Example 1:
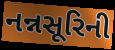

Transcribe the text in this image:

નન્નસૂરિની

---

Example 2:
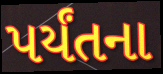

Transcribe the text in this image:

પર્યંતના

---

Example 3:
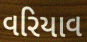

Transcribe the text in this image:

વરિયાવ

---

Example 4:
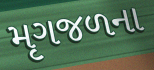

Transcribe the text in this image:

મૃગજળના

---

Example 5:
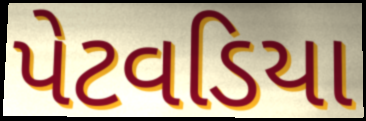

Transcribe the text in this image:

પેટવડિયા